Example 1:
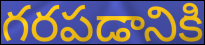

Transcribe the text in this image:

గరపడానికి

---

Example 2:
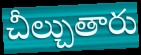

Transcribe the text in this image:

చీల్చుతారు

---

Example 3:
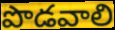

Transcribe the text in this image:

పొడవాలి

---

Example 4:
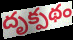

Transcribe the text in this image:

దృక్పథం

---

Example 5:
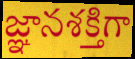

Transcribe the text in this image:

జ్ఞానశక్తిగా